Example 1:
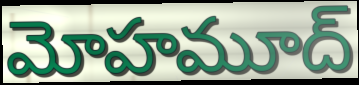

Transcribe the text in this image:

మోహమూద్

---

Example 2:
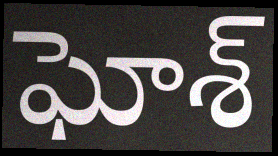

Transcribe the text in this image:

ఘోశ్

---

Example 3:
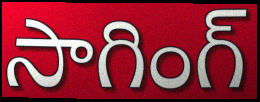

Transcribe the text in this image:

సాగింగ్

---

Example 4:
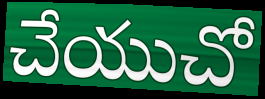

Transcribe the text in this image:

చేయుచో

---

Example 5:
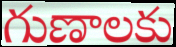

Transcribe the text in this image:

గుణాలకు